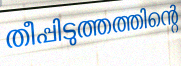
തീപ്പിടുത്തത്തിന്റെ